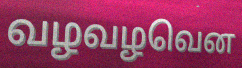
வழவழவென